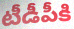
టీడీపీకి